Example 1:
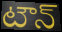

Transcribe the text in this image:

టౌన్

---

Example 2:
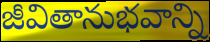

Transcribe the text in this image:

జీవితానుభవాన్ని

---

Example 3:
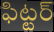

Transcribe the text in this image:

ఫిట్టర్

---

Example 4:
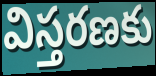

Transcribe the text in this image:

విస్తరణకు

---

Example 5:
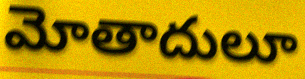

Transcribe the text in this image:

మోతాదులూ